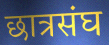
छात्रसंघ